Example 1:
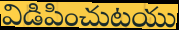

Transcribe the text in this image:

విడిపించుటయు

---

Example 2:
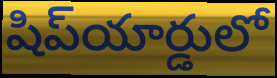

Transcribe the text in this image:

షిప్‌యార్డులో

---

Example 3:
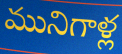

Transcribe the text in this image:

మునిగాళ్ల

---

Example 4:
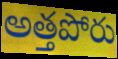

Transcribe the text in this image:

అత్తపోరు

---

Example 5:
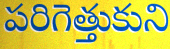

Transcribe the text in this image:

పరిగెత్తుకుని